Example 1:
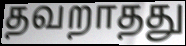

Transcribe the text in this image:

தவறாதது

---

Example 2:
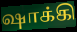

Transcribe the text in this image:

ஷாக்கி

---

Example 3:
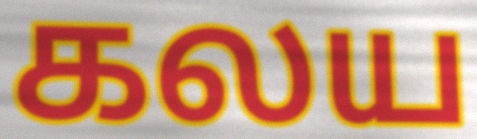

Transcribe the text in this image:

கலய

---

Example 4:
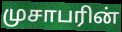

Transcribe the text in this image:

முசாபரின்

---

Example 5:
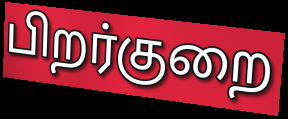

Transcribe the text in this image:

பிறர்குறை